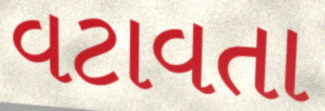
વટાવતા